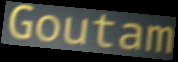
Goutam